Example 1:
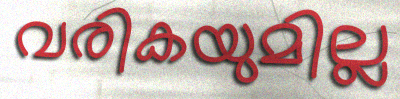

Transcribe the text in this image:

വരികയുമില്ല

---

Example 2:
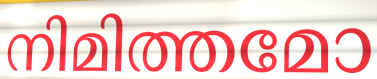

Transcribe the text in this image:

നിമിത്തമോ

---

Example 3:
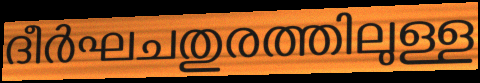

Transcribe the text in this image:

ദീർഘചതുരത്തിലുള്ള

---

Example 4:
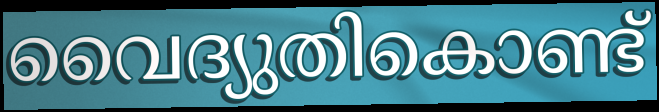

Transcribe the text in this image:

വൈദ്യുതികൊണ്ട്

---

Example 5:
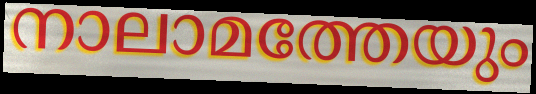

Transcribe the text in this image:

നാലാമത്തേയും